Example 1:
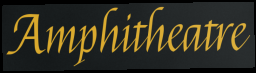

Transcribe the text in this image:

Amphitheatre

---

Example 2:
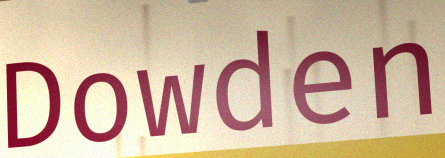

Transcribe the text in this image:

Dowden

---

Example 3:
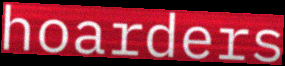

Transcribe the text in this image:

hoarders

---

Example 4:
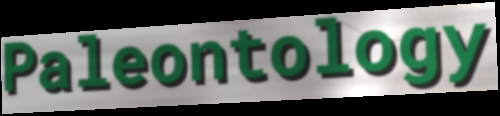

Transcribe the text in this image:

Paleontology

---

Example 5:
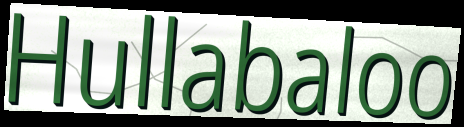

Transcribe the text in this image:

Hullabaloo